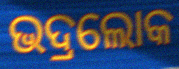
ଭଦ୍ରଲୋକ